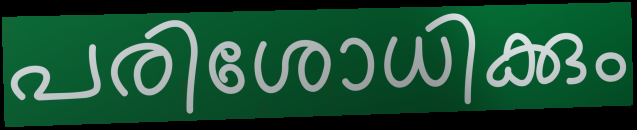
പരിശോധിക്കും